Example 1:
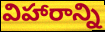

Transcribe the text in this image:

విహారాన్ని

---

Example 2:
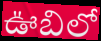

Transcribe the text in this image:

ఊబిలో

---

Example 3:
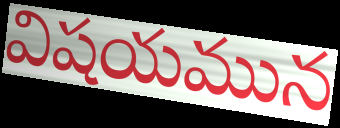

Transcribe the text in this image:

విషయమున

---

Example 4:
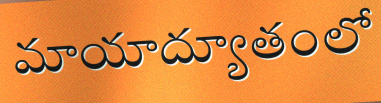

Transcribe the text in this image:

మాయాద్యూతంలో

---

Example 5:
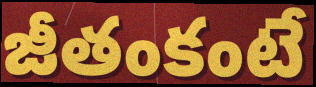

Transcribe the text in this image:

జీతంకంటే